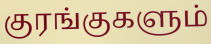
குரங்குகளும்